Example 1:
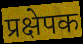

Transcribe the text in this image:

प्रक्षेपक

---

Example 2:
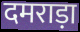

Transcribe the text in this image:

दमराड़ा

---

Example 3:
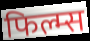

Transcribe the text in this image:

फिल्म्स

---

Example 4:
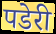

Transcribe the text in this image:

पडेरी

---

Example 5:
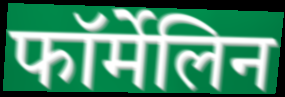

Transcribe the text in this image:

फॉर्मेलिन